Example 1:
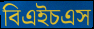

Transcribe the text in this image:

বিএইচএস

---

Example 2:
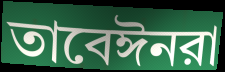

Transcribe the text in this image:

তাবেঈনরা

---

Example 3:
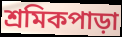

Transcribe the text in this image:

শ্রমিকপাড়া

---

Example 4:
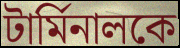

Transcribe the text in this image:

টার্মিনালকে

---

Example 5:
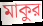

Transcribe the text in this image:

মাকুর